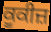
ਕੂਕੀਜ਼